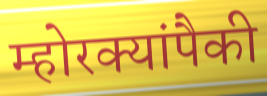
म्होरक्यांपैकी